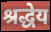
श्रद्धेय